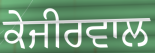
ਕੇਜੀਰਵਾਲ